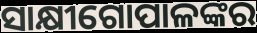
ସାକ୍ଷୀଗୋପାଳଙ୍କର